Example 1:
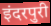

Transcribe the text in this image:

इंदरपुरी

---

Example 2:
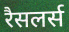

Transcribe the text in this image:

रैसलर्स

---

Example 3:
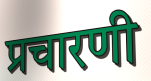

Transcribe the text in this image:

प्रचारणी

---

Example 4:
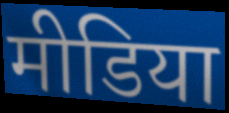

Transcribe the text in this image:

मीडिया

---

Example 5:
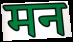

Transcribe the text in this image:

मन